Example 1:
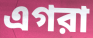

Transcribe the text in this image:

এগরা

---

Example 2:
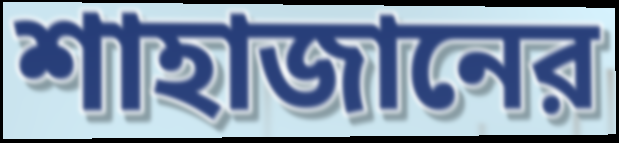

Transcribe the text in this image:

শাহাজানের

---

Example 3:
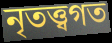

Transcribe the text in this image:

নৃতত্ত্বগত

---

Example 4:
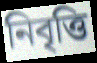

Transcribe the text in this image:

নিবৃত্তি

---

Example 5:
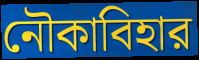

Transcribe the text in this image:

নৌকাবিহার